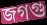
জগগু